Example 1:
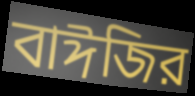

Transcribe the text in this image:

বাঈজির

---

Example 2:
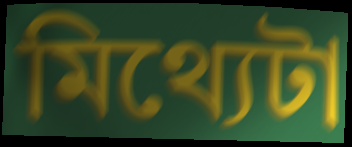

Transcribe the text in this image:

মিথ্যেটা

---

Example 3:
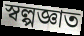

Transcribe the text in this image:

স্বল্পজ্ঞাত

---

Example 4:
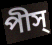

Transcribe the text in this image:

পীস্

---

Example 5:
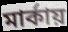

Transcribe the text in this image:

মার্কায়